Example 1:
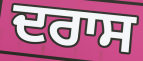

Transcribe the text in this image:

ਦਰਾਸ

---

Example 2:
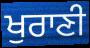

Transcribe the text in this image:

ਖੁਰਾਣੀ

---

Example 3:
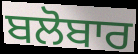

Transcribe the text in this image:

ਬਲੋਬਾਰ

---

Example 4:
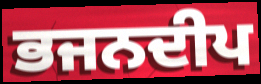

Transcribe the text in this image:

ਭਜਨਦੀਪ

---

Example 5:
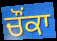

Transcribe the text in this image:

ਚੌੰਕਾ